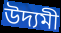
উদ্যমী